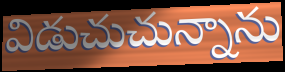
విడుచుచున్నాను